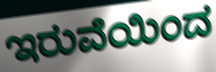
ಇರುವೆಯಿಂದ